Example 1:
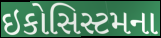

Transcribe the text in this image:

ઇકોસિસ્ટમના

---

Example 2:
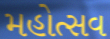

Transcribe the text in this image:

મહોત્સવ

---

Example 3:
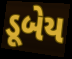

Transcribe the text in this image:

ડૂબેય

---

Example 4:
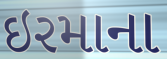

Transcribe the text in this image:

ઇરમાના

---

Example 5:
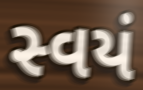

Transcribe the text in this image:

સ્વયં